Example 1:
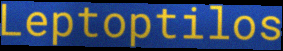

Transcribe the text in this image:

Leptoptilos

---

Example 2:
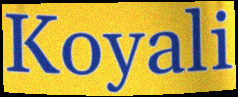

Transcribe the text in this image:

Koyali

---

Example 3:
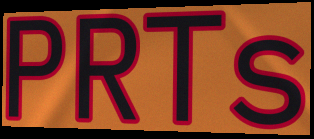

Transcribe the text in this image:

PRTs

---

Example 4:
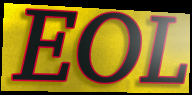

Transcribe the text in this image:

EOL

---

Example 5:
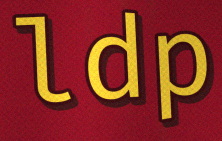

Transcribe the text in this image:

ldp